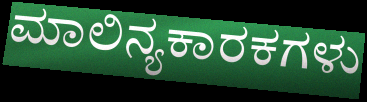
ಮಾಲಿನ್ಯಕಾರಕಗಳು